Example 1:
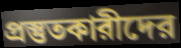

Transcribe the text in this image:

প্রস্তুতকারীদের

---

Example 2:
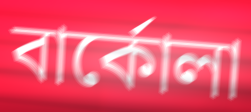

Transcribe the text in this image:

বার্কোলা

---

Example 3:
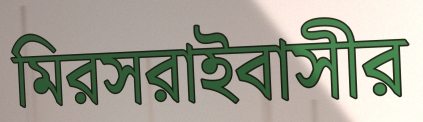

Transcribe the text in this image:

মিরসরাইবাসীর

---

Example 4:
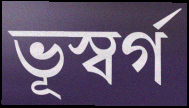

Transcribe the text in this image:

ভূস্বর্গ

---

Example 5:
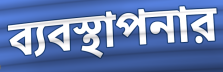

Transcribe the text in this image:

ব্যবস্থাপনার